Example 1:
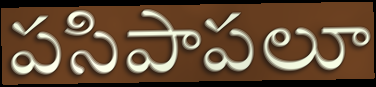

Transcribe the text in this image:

పసిపాపలూ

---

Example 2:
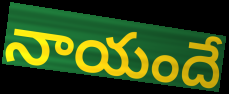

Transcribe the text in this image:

నాయందే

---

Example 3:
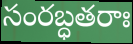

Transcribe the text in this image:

సంరబ్ధతరాః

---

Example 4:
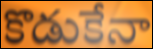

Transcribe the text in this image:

కొడుకేనా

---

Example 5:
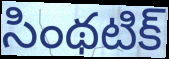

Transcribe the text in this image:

సింథటిక్